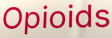
Opioids